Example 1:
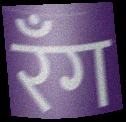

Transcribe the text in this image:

रॅंग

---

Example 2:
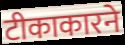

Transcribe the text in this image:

टीकाकारने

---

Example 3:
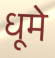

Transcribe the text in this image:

धूमे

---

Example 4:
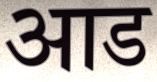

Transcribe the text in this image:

आड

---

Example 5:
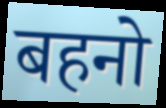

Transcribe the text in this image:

बहनो